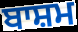
ਬਾਸ਼ਮ